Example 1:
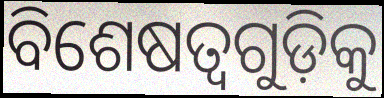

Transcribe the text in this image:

ବିଶେଷତ୍ୱଗୁଡ଼ିକୁ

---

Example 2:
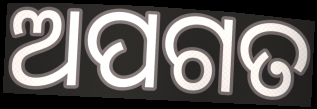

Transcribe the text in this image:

ଅପଗତ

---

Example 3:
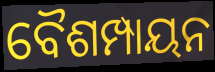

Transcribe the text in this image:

ବୈଶମ୍ପାୟନ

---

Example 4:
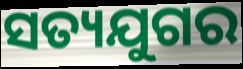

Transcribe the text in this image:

ସତ୍ୟଯୁଗର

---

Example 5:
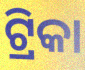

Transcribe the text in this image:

ଟ୍ରିକା